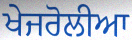
ਖੇਜਰੋਲੀਆ